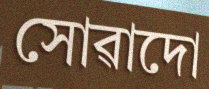
সোৱাদো